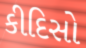
કીદિસો